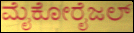
ಮೈಕೋರೈಜಲ್